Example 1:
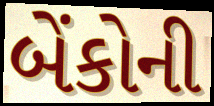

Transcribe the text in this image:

બેંકોની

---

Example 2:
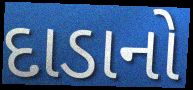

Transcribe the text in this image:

દાડાનો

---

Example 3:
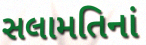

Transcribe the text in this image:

સલામતિનાં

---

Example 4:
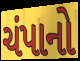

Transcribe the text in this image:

ચંપાનો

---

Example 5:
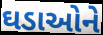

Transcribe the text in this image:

ઘડાઓને